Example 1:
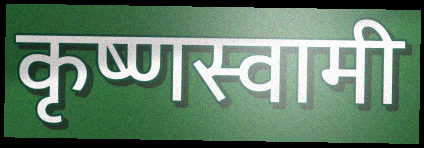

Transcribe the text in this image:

कृष्णस्वामी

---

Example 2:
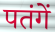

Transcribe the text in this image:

पतंगें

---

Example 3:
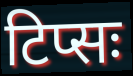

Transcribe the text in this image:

टिप्सः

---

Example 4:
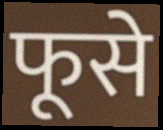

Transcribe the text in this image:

फूसे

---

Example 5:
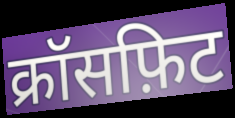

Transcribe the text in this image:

क्रॉसफ़िट